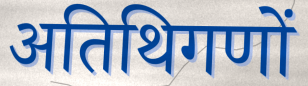
अतिथिगणों